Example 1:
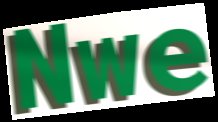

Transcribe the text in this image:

Nwe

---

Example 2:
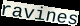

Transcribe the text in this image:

ravines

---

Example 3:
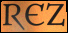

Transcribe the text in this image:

REZ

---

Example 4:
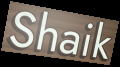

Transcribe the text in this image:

Shaik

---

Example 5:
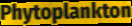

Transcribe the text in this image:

Phytoplankton